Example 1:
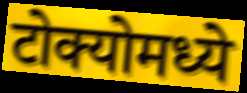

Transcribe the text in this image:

टोक्योमध्ये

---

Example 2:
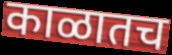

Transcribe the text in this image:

काळातच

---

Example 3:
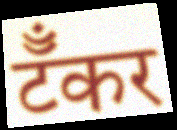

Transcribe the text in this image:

टॅँकर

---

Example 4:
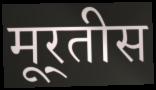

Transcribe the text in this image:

मूर्तीस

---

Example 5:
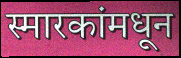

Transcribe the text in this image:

स्मारकांमधून